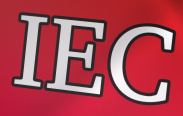
IEC